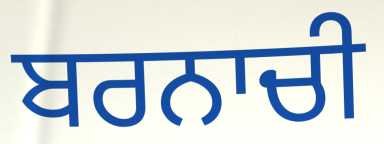
ਬਰਨਾਚੀ